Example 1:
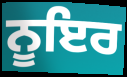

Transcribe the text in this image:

ਨੂਇਰ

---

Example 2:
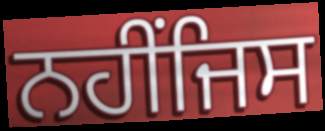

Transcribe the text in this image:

ਨਹੀਂਜਿਸ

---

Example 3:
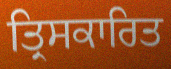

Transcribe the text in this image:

ਤ੍ਰਿਸਕਾਰਿਤ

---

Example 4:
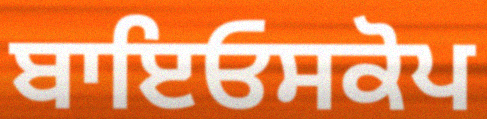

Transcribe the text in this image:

ਬਾਇਓਸਕੋਪ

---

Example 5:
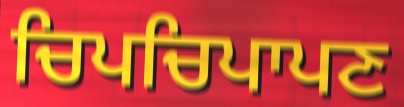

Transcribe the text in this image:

ਚਿਪਚਿਪਾਪਣ